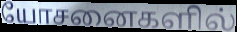
யோசனைகளில்